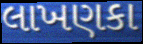
લાખણકા